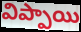
విప్పాయి